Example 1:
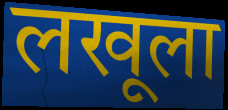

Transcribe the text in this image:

लखूला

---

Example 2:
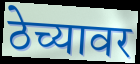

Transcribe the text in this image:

ठेच्यावर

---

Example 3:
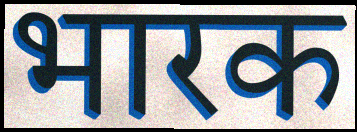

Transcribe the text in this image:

भारक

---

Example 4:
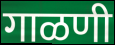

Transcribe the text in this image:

गाळणी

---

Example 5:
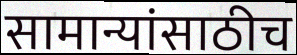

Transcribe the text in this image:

सामान्यांसाठीच